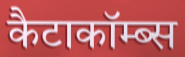
कैटाकॉम्ब्स